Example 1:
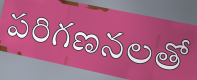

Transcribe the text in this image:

పరిగణనలతో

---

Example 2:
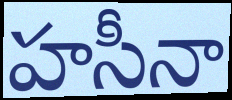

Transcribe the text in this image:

హసీనా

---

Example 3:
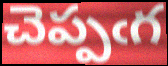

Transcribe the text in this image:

చెప్పఁగ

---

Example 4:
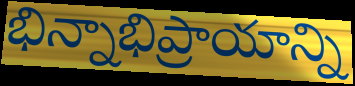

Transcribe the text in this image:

భిన్నాభిప్రాయాన్ని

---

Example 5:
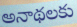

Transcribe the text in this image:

అనాథలకు